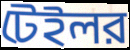
টেইলর